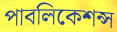
পাবলিকেশন্স